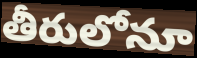
తీరులోనూ